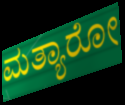
ಮತ್ಯಾರೋ